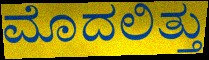
ಮೊದಲಿತ್ತು